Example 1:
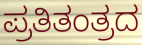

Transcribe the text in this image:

ಪ್ರತಿತಂತ್ರದ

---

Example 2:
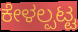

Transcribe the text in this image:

ಕೇಳಲ್ಪಟ್ಟ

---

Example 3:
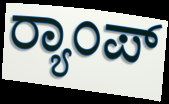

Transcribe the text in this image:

ರ‍್ಯಾಂಪ್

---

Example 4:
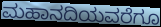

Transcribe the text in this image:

ಮಹಾನದಿಯವರೆಗೂ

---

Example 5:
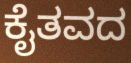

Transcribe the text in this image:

ಕೈತವದ